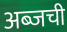
अब्जची